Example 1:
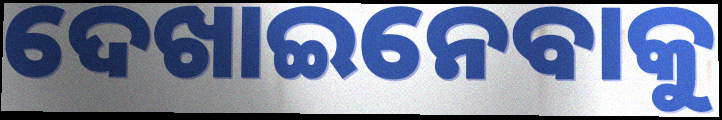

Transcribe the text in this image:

ଦେଖାଇନେବାକୁ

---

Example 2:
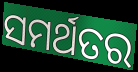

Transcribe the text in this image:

ସମର୍ଥତର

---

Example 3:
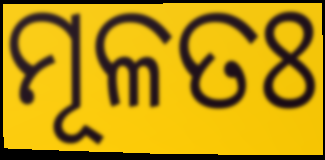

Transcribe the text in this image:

ମୂଳତଃ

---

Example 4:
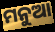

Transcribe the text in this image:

ମନୁଆ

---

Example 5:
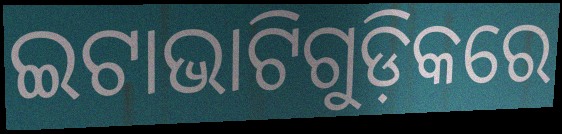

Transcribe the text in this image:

ଇଟାଭାଟିଗୁଡ଼ିକରେ